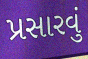
પ્રસારવું